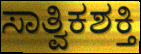
ಸಾತ್ವಿಕಶಕ್ತಿ